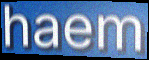
haem